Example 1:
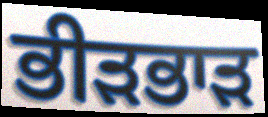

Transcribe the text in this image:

ਭੀੜਭਾੜ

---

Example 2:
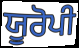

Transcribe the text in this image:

ਯੂਰੋਪੀ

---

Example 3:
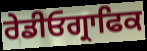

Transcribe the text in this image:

ਰੇਡੀਓਗ੍ਰਾਫਿਕ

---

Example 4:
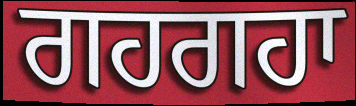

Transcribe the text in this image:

ਗਹਗਹਾ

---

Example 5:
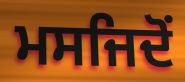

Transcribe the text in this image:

ਮਸਜਿਦੋਂ